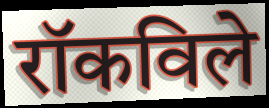
रॉकविले